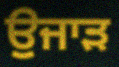
ਉੁਜਾੜ